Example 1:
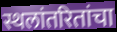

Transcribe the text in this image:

स्थलांतरितांचा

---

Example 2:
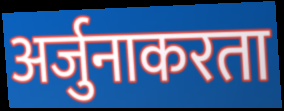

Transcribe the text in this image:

अर्जुनाकरता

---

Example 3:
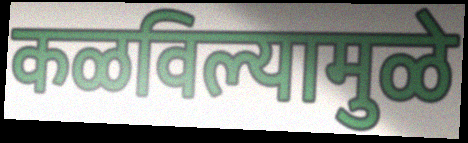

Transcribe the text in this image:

कळविल्यामुळे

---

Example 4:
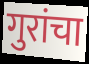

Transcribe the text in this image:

गुरांचा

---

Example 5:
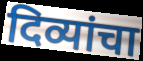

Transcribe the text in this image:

दिव्यांचा